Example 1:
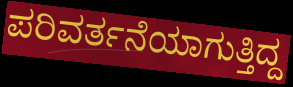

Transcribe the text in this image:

ಪರಿವರ್ತನೆಯಾಗುತ್ತಿದ್ದ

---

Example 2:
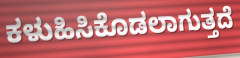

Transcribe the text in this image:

ಕಳುಹಿಸಿಕೊಡಲಾಗುತ್ತದೆ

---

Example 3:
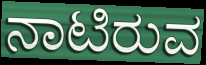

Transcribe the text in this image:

ನಾಟಿರುವ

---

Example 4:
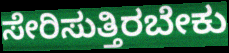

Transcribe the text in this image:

ಸೇರಿಸುತ್ತಿರಬೇಕು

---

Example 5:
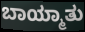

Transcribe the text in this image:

ಬಾಯ್ಮಾತು